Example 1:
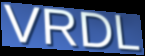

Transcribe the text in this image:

VRDL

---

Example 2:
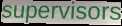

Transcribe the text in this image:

supervisors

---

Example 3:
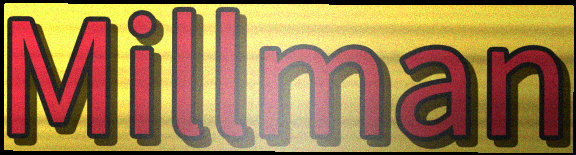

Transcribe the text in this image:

Millman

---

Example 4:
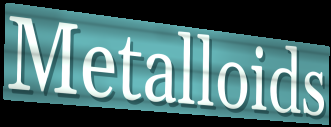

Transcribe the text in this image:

Metalloids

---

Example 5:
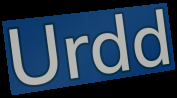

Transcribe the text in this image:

Urdd